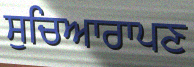
ਸੁਚਿਆਰਾਪਣ